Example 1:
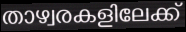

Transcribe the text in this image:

താഴ്വരകളിലേക്ക്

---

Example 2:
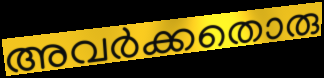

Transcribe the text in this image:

അവർക്കതൊരു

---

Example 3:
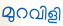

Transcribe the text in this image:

മുറവിളി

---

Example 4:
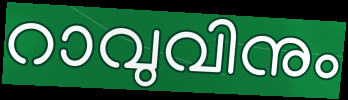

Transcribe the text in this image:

റാവുവിനും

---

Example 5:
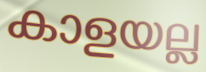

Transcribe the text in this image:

കാളയല്ല